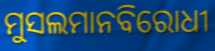
ମୁସଲମାନବିରୋଧୀ